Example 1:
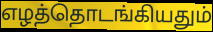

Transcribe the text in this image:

எழத்தொடங்கியதும்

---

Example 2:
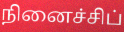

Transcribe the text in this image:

நினைச்சிப்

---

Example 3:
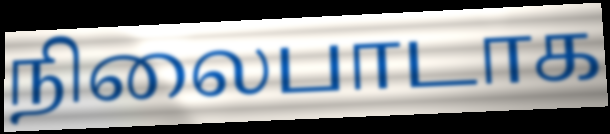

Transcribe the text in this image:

நிலைபாடாக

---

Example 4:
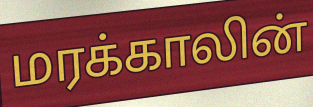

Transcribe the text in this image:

மரக்காலின்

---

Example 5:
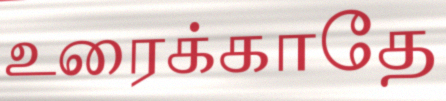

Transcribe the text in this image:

உரைக்காதே